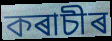
কৰাচীৰ